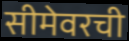
सीमेवरची